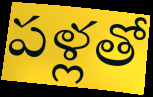
పళ్లతో